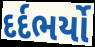
દર્દભર્યો